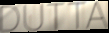
DUTTA